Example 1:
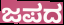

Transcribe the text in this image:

ಜಪದ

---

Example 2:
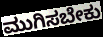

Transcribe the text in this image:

ಮುಗಿಸಬೇಕು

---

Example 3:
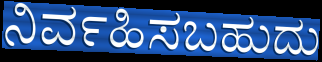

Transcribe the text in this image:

ನಿರ್ವಹಿಸಬಹುದು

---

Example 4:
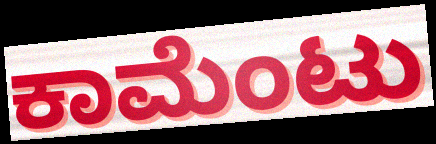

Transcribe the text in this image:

ಕಾಮೆಂಟು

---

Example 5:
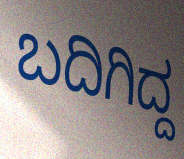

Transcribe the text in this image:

ಬದಿಗಿದ್ದ